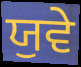
ਯੁਵੇ